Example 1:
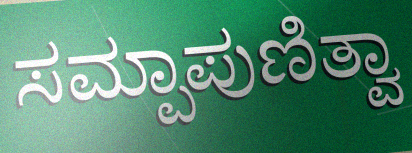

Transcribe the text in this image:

ಸಮ್ಪಾಪುಣಿತ್ವಾ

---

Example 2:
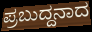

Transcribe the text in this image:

ಪ್ರಬುದ್ದನಾದ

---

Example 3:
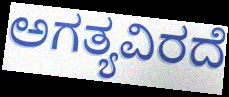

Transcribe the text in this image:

ಅಗತ್ಯವಿರದೆ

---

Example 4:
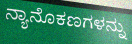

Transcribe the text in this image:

ನ್ಯಾನೊಕಣಗಳನ್ನು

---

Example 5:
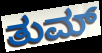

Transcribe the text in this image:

ತುಮ್